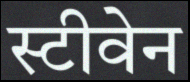
स्टीवेन